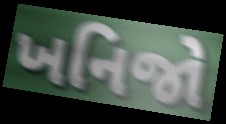
ખનિજો